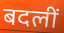
बदलीं